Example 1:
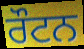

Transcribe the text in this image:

ਰੌਟਨ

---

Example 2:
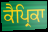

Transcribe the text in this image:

ਕੈਪ੍ਰਿਕਾ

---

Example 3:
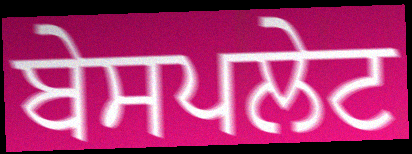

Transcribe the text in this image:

ਬੇਸਪਲੇਟ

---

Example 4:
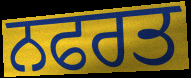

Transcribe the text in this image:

ਨਫਰਤ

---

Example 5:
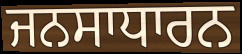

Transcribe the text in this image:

ਜਨਸਾਧਾਰਨ